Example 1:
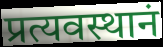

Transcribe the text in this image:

प्रत्यवस्थानं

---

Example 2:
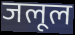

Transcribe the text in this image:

जलूल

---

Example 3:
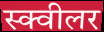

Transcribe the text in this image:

स्क्वीलर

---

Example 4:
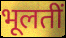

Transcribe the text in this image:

भूलतीं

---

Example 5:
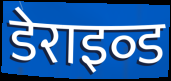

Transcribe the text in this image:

डेराइव्ड